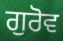
ਗੁਰੋਵ